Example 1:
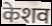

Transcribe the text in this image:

केशव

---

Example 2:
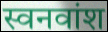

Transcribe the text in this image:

स्वनवांश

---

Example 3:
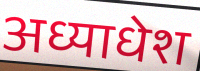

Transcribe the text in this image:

अध्याधेश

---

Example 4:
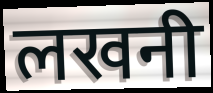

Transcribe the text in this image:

लखनी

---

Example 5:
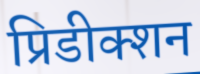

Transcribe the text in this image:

प्रिडीक्शन